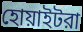
হোয়াইটরা